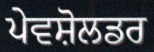
ਪੇਵਸ਼ੋਲਡਰ